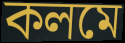
কলমে